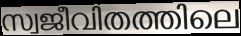
സ്വജീവിതത്തിലെ